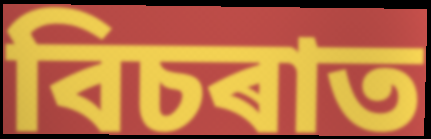
বিচৰাত